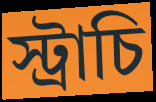
স্ট্রাচি